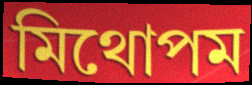
মিথোপম